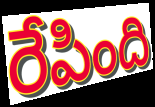
రేపింది